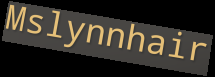
Mslynnhair